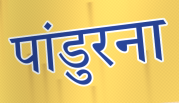
पांडुरना